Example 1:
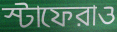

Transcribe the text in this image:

স্টাফেরাও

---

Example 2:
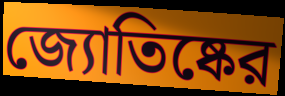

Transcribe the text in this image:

জ্যোতিষ্কের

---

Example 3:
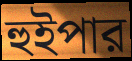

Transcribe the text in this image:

হুইপার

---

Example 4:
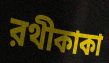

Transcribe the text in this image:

রথীকাকা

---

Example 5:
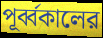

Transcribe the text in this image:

পূর্ব্বকালের